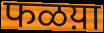
फळय़ा